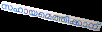
സഹായമെത്തിക്കാന്